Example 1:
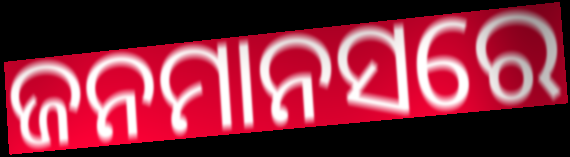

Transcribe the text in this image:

ଜନମାନସରେ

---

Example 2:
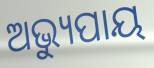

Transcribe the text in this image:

ଅଭ୍ୟୁପାୟ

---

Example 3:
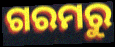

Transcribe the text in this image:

ଗରମରୁ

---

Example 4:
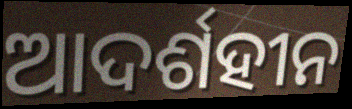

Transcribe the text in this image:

ଆଦର୍ଶହୀନ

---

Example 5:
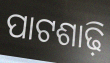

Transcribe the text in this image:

ପାଟଶାଢ଼ି